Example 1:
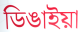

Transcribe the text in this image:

ডিঙাইয়া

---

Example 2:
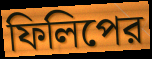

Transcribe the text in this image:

ফিলিপের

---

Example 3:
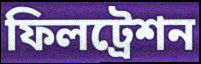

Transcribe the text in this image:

ফিলট্রেশন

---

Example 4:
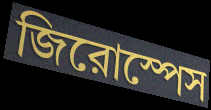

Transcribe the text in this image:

জিরোস্পেস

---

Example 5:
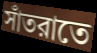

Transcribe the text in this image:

সাঁতরাতে